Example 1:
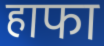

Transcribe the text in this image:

हाफा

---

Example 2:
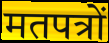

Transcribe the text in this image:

मतपत्रों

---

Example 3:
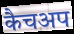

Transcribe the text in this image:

कैचअप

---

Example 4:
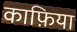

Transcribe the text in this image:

काफ़िया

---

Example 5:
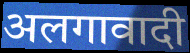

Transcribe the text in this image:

अलगावादी